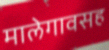
मालेगावसह